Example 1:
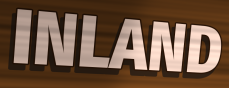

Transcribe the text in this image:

INLAND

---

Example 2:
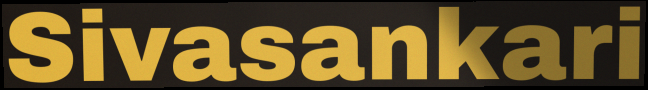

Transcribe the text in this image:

Sivasankari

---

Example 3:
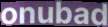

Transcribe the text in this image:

onubad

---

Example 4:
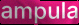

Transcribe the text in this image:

ampula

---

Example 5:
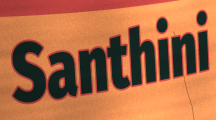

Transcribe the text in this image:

Santhini